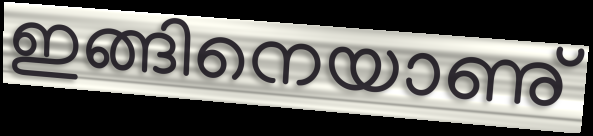
ഇങ്ങിനെയാണു്